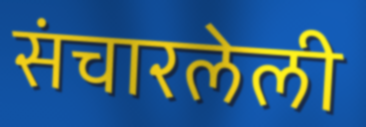
संचारलेली